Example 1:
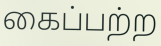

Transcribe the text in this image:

கைப்பற்ற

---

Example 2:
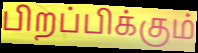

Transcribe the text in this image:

பிறப்பிக்கும்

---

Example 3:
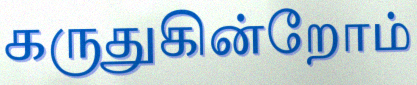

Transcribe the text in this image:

கருதுகின்றோம்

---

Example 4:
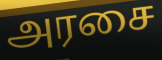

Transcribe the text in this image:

அரசை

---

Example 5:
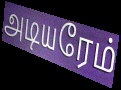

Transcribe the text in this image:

அடியரேம்